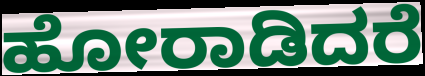
ಹೋರಾಡಿದರೆ